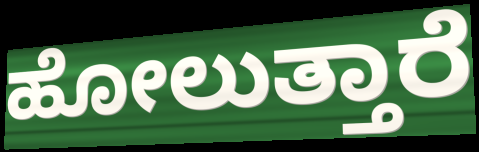
ಹೋಲುತ್ತಾರೆ